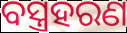
ବସ୍ତ୍ରହରଣ